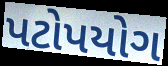
પટોપયોગ